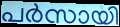
പർസായി